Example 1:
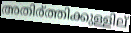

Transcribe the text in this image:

അതിര്ത്തിക്കുള്ളില്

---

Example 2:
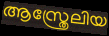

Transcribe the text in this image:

ആസ്ത്രേലിയ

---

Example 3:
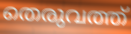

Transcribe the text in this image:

തെരുവത്ത്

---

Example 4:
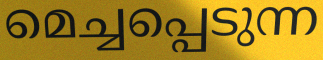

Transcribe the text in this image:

മെച്ചപ്പെടുന്ന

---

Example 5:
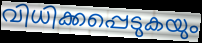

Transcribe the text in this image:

വിധിക്കപ്പെടുകയും